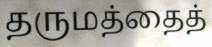
தருமத்தைத்